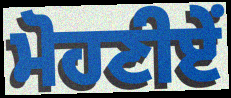
ਮੋਹਣੀਏਂ